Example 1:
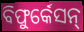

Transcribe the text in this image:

ବିଫୁର୍କେସନ୍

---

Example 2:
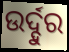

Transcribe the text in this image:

ଉର୍ଦ୍ଦୁର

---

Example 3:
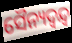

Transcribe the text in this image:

ସୈନ୍ୟଦ୍ୱନ୍ଦ୍ୱ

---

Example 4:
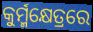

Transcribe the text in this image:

କୁର୍ମ୍ମକ୍ଷେତ୍ରରେ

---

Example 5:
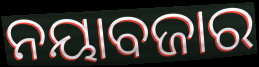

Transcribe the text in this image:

ନୟାବଜାର